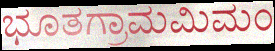
ಭೂತಗ್ರಾಮಮಿಮಂ